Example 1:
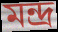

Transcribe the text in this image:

মন্দ্র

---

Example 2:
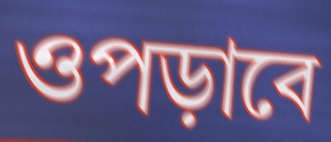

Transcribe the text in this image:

ওপড়াবে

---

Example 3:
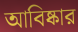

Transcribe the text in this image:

আবিষ্কার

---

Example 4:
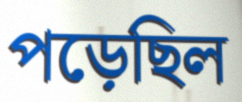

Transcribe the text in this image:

পড়েছিল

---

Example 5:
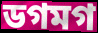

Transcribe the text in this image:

ডগমগ